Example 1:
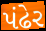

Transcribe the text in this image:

પંઢેર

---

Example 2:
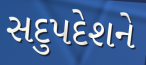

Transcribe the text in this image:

સદુપદેશને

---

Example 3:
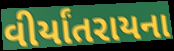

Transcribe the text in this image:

વીર્યાંતરાયના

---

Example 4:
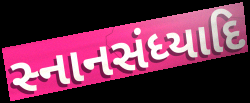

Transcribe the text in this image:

સ્નાનસંધ્યાદિ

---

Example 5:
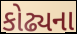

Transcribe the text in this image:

કોઢ્યના